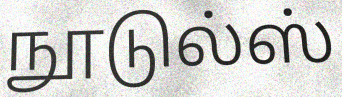
நூடுல்ஸ்